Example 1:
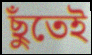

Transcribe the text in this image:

ছুঁতেই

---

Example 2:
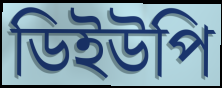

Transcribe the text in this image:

ডিইউপি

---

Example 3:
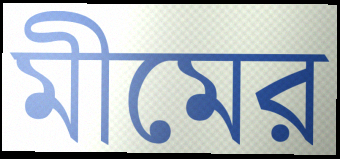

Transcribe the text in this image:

মীমের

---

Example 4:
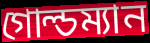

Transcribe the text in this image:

গোল্ডম্যান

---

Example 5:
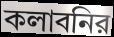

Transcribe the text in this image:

কলাবনির